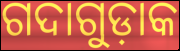
ଗଦାଗୁଡ଼ାକ